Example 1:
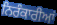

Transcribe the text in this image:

ਨਿਰੰਕਾਰੀਆਂ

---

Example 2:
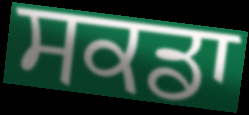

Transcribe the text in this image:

ਸਕਡਾ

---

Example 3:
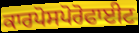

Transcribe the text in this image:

ਕਾਰਪੋਸਪੋਰੋਫਾਈਟ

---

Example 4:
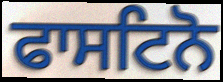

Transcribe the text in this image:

ਫਾਸਟਿਨੋ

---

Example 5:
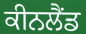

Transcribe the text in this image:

ਕੀਨਲੈਂਡ